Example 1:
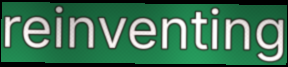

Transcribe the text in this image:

reinventing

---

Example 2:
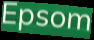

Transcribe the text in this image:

Epsom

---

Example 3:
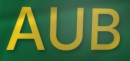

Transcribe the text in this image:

AUB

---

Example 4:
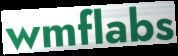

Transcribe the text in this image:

wmflabs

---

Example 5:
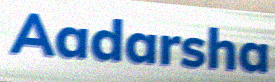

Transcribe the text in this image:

Aadarsha